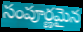
సంపూర్ణమైన